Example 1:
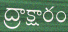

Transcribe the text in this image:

ద్రాక్షారం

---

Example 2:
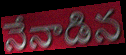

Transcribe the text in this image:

నేనాడిన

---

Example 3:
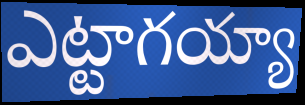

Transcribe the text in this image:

ఎట్టాగయ్యా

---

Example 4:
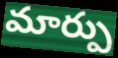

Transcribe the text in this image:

మార్పు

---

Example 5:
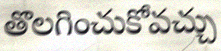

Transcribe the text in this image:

తొలగించుకోవచ్చు